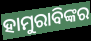
ହାମୁରାବିଙ୍କର